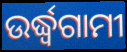
ଉର୍ଦ୍ଧ୍ୱଗାମୀ